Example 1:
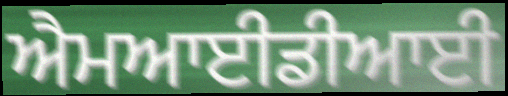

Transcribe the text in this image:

ਐਮਆਈਡੀਆਈ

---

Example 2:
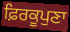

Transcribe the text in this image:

ਫ਼ਿਰਕੂਪੁਣਾ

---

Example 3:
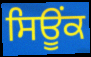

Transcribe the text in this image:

ਸਿਊਂਕ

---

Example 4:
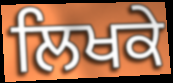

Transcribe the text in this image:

ਲਿਖਕੇ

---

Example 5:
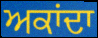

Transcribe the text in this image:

ਅਕਾਂਦਾ